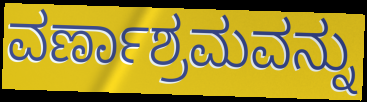
ವರ್ಣಾಶ್ರಮವನ್ನು